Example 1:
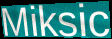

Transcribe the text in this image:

Miksic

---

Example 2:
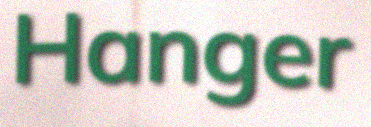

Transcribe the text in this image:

Hanger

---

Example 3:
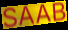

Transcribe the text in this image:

SAAB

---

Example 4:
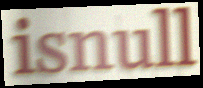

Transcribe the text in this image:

isnull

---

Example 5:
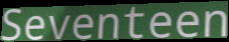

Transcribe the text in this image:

Seventeen